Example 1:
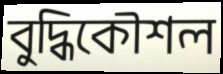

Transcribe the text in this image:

বুদ্ধিকৌশল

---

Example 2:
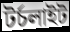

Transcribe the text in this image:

টর্চলাইট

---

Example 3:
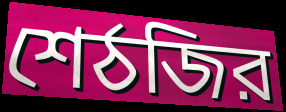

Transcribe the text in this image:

শেঠজির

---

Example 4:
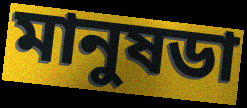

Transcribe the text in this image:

মানুষডা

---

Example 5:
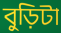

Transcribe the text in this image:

বুড়িটা